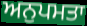
ਅਨੁਪਮਤਾ